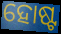
ହୋଷ୍ଟ